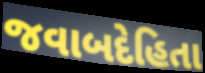
જવાબદેહિતા